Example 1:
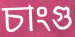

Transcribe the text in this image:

চাংগু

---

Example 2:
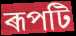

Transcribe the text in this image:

ৰূপটি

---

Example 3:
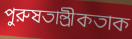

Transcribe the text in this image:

পুৰুষতান্ত্ৰীকতাক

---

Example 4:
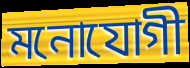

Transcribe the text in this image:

মনোযোগী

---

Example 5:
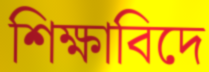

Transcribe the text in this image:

শিক্ষাবিদে